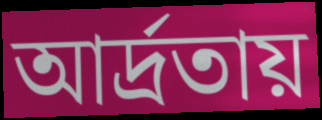
আর্দ্রতায়